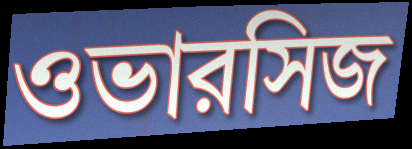
ওভারসিজ